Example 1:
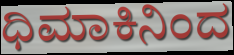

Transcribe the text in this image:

ಧಿಮಾಕಿನಿಂದ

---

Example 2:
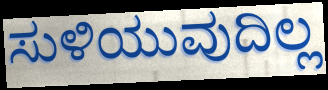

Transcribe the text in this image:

ಸುಳಿಯುವುದಿಲ್ಲ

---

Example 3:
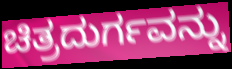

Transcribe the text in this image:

ಚಿತ್ರದುರ್ಗವನ್ನು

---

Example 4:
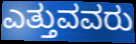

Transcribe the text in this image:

ಎತ್ತುವವರು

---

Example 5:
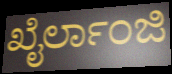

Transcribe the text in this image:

ಖೈರ್ಲಾಂಜಿ